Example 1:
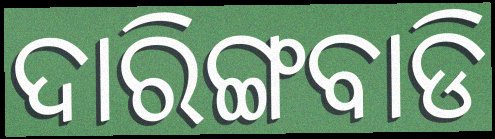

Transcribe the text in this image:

ଦାରିଙ୍ଗବାଡି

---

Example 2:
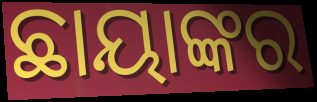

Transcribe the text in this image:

ଛାୟାଙ୍କର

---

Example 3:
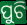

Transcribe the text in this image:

ପୁଚି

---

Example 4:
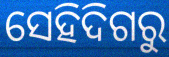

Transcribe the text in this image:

ସେହିଦିଗରୁ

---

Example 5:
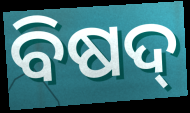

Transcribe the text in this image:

ବିଷଦ୍